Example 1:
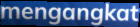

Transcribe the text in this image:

mengangkat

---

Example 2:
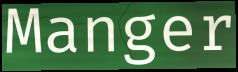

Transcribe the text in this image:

Manger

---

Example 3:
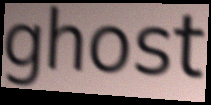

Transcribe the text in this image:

ghost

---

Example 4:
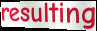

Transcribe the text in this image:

resulting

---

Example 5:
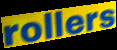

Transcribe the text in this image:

rollers